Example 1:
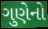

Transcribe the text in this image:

ગુણેનો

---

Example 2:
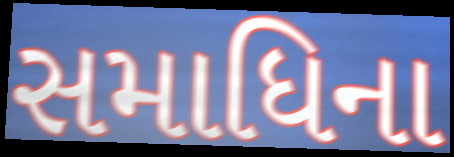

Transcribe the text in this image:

સમાધિના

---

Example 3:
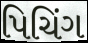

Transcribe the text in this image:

પિચિંગ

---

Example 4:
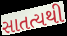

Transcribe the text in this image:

સાતત્યથી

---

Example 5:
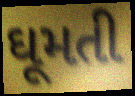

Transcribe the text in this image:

ઘૂમતી